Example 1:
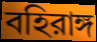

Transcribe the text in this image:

বহিরাঙ্গ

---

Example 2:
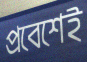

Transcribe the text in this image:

প্রবেশেই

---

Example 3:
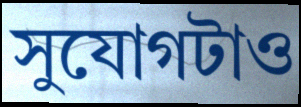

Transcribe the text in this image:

সুযোগটাও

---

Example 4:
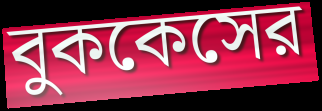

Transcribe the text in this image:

বুককেসের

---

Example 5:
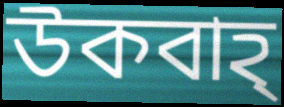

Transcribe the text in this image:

উকবাহ্